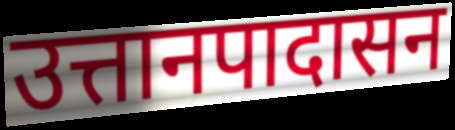
उत्तानपादासन